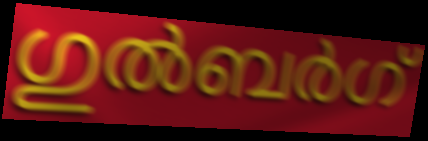
ഗുൽബർഗ്